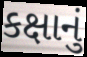
કક્ષાનું